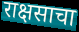
राक्षसाचा